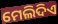
ମେଲିଦିଏ